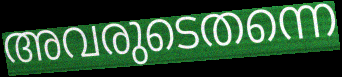
അവരുടെതന്നെ